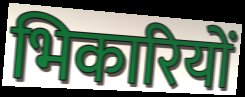
भिकारियों